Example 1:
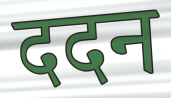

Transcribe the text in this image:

ददन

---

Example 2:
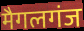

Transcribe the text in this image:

मैगलगंज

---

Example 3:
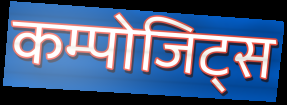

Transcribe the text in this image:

कम्पोजिट्स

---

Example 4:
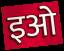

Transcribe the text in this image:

इओ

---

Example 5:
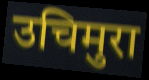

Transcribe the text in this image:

उचिमुरा